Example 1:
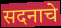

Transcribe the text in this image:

सदनाचे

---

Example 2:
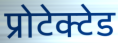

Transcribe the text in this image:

प्रोटेक्टेड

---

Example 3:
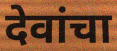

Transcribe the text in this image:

देवांचा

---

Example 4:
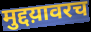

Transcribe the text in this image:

मुद्दय़ावरच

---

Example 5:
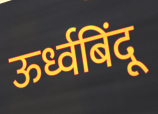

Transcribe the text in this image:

ऊर्ध्वबिंदू